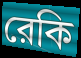
রেকি